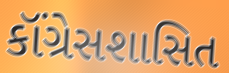
કૉંગ્રેસશાસિત